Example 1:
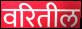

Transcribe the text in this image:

वरितील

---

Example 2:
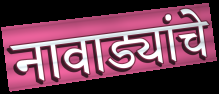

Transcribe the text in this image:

नावाड्यांचे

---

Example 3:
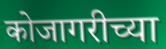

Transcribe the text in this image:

कोजागरीच्या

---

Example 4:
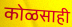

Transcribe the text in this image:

कोळसाही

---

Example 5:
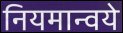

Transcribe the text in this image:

नियमान्वये